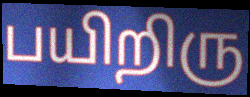
பயிறிரு